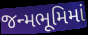
જન્મભૂમિમાં